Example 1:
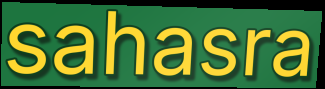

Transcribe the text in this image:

sahasra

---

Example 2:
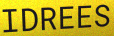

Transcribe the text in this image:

IDREES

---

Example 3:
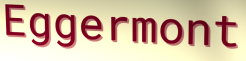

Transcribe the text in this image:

Eggermont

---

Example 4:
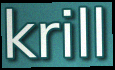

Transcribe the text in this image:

krill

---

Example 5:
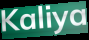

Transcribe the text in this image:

Kaliya